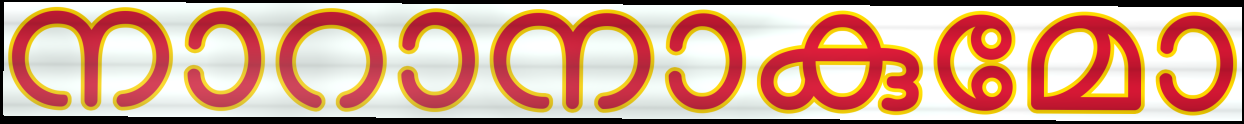
നാറാനാകുമോ